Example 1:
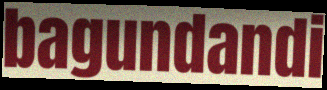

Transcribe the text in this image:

bagundandi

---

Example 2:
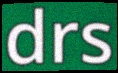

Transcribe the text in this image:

drs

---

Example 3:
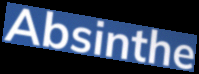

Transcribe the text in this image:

Absinthe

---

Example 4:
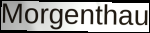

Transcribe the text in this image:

Morgenthau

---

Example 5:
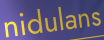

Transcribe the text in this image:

nidulans